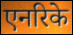
एनरिके